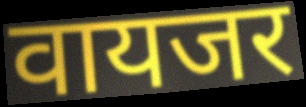
वायजर